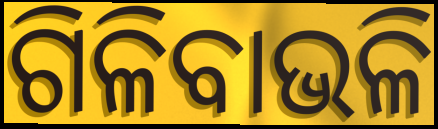
ଗିଳିବାଭଳି